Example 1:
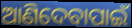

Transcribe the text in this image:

ଆଣିଦେବାପାଇଁ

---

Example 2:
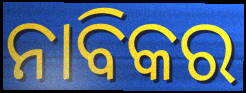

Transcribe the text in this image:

ନାବିକର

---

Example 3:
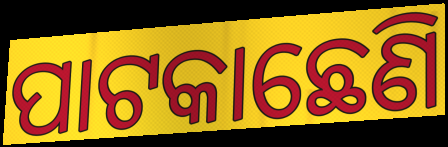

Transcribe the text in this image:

ପାଟକାଛେଣି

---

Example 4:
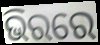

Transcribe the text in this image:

ଭିରରେ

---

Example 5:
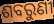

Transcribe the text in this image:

ଶବରୁଣୀ